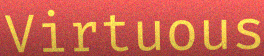
Virtuous